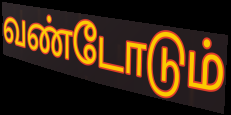
வண்டோடும்